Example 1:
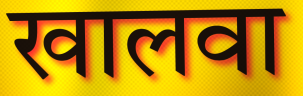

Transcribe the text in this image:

खालवा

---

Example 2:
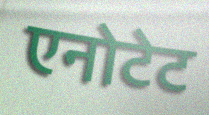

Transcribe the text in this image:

एनोटेट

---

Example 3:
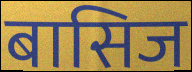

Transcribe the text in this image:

बासिज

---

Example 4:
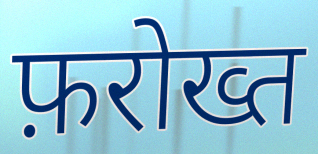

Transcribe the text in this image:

फ़रोख्त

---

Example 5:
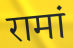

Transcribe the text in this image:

रामां